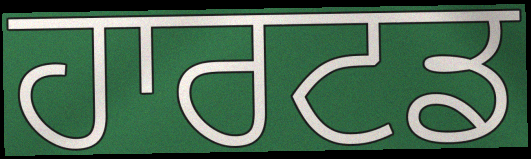
ਹਾਰਟਡ